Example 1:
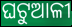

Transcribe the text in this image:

ଘଟୁଆଳୀ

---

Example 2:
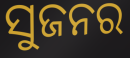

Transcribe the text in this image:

ସୁଜନର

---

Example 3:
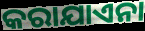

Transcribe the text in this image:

କରାଯାଏନା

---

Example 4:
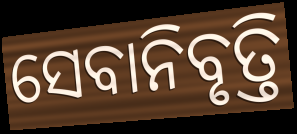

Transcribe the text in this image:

ସେବାନିବୃତ୍ତି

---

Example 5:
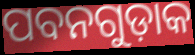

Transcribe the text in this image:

ପବନଗୁଡ଼ାକ